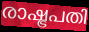
രാഷ്ട്രപതി